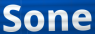
Sone